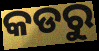
କଡରୁ